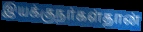
இயக்குநர்கள்தான்